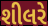
શીલરે